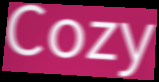
Cozy